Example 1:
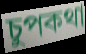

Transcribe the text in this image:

চুপকথা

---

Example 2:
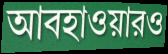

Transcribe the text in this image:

আবহাওয়ারও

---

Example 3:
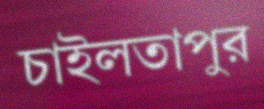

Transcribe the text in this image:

চাইলতাপুর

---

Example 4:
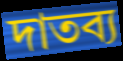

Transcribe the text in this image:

দাতব্য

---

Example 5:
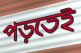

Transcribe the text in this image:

পড়তেই